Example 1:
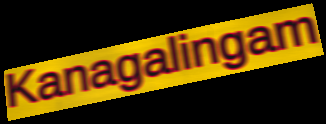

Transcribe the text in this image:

Kanagalingam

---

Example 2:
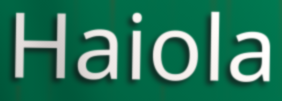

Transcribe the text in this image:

Haiola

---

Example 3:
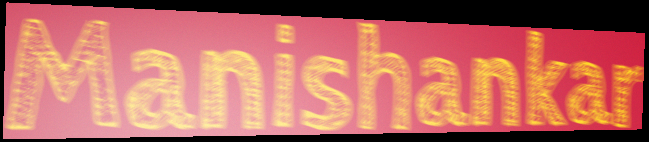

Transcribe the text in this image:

Manishankar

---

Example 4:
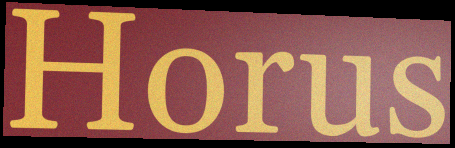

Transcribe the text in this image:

Horus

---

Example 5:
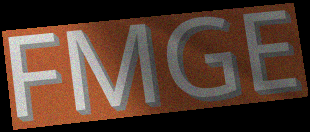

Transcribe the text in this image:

FMGE